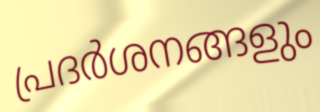
പ്രദർശനങ്ങളും